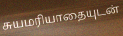
சுயமரியாதையுடன்